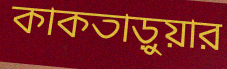
কাকতাড়ুয়ার